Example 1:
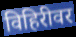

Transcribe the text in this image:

विहिरीवर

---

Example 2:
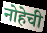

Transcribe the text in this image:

नोहेची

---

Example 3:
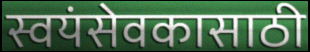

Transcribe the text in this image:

स्वयंसेवकासाठी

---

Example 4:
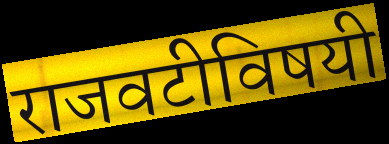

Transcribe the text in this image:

राजवटीविषयी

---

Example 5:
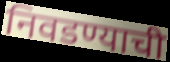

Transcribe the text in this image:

निवडण्याची